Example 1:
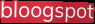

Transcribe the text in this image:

bloogspot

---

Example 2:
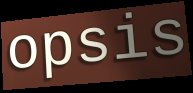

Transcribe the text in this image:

opsis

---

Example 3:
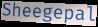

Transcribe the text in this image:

Sheegepal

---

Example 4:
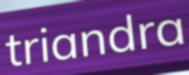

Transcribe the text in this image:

triandra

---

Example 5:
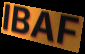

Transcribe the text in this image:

IBAF